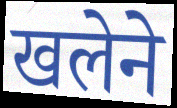
खलेने